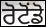
ਰੋਟੋਂਡੋ